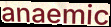
anaemic